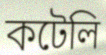
কটেলি